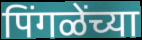
पिंगळेंच्या